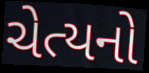
ચેત્યનો